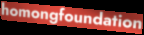
homongfoundation